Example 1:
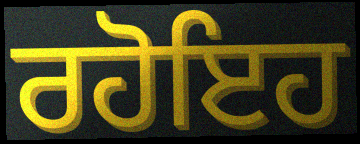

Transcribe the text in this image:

ਰਹੋਇਹ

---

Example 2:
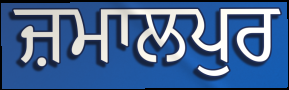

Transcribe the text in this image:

ਜ਼ਮਾਲਪੁਰ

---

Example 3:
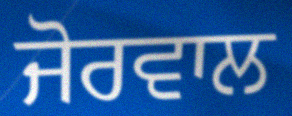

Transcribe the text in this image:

ਜੋਰਵਾਲ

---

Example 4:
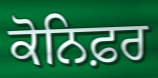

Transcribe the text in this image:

ਕੋਨਿਫ਼ਰ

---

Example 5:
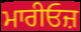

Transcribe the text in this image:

ਮਾਰੀਓਜ਼